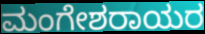
ಮಂಗೇಶರಾಯರ